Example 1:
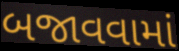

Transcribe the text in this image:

બજાવવામાં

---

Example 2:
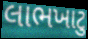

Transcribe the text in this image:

લાભખાટુ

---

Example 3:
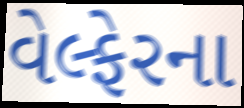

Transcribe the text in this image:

વેલ્ફેરના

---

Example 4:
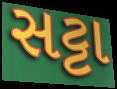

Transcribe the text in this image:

સટ્ટા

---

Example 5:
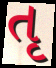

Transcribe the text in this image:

તૃ